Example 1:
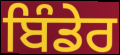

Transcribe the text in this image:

ਬਿੰਡੇਰ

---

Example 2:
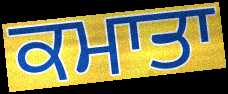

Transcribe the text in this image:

ਕਮਾਤਾ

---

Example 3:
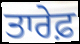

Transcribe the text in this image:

ਤਾਰੇਫ਼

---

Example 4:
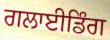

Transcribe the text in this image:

ਗਲਾਈਡਿੰਗ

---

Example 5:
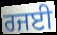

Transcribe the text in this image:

ਰਜਈ